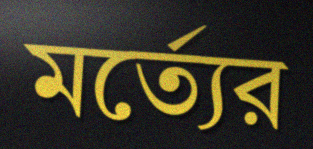
মর্ত্যের